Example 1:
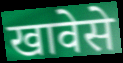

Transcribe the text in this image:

खावेसे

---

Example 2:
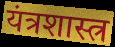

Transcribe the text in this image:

यंत्रशास्त्र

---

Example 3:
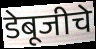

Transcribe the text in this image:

डेबूजीचे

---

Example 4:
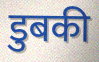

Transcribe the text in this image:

डुबकी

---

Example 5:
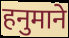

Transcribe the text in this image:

हनुमाने